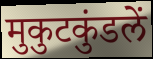
मुकुटकुंडलें